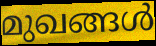
മുഖങ്ങൾ